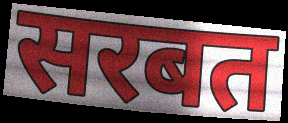
सरबत